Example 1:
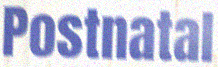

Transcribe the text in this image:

Postnatal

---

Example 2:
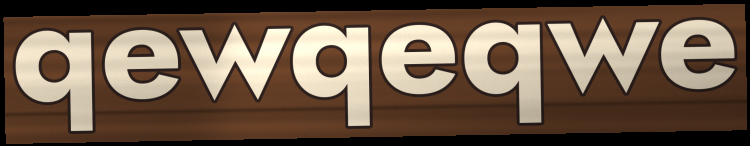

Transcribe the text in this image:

qewqeqwe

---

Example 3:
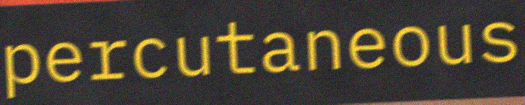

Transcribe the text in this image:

percutaneous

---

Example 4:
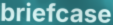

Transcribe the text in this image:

briefcase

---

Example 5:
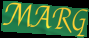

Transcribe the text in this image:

MARG